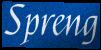
Spreng